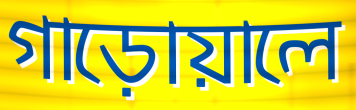
গাড়োয়ালে